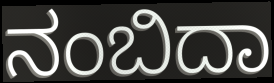
ನಂಬಿದಾ